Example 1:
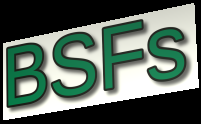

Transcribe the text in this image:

BSFs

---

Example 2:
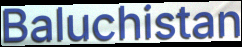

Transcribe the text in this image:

Baluchistan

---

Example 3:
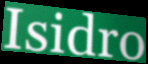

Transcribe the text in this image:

Isidro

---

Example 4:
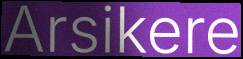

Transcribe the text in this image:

Arsikere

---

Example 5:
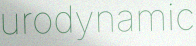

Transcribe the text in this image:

urodynamic